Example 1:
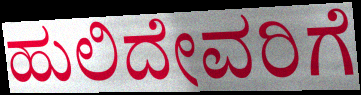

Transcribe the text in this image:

ಹುಲಿದೇವರಿಗೆ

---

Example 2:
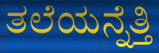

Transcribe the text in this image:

ತಲೆಯನ್ನೆತ್ತಿ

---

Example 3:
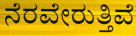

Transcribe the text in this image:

ನೆರವೇರುತ್ತಿವೆ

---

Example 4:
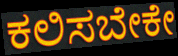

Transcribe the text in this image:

ಕಲಿಸಬೇಕೇ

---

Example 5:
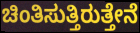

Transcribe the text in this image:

ಚಿಂತಿಸುತ್ತಿರುತ್ತೇನೆ